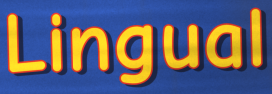
Lingual